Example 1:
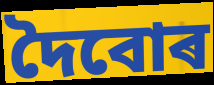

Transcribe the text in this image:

দৈবোৰ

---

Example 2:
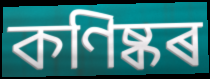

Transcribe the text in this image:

কণিষ্কৰ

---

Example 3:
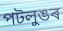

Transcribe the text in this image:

পটলুঙৰ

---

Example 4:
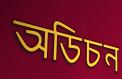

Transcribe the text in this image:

অডিচন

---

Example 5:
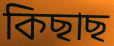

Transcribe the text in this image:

কিছাছ